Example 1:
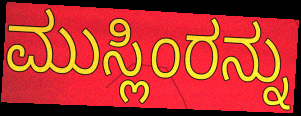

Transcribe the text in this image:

ಮುಸ್ಲಿಂರನ್ನು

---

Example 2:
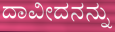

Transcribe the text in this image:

ದಾವೀದನನ್ನು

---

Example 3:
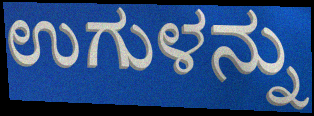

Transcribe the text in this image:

ಉಗುಳನ್ನು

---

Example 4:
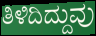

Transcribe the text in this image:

ತಿಳಿದಿದ್ದುವು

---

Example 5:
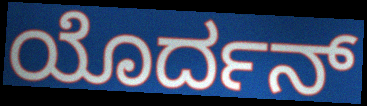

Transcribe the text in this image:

ಯೊರ್ದನ್